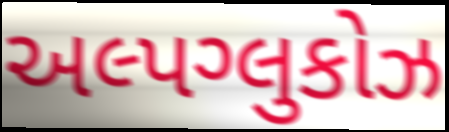
અલ્પગ્લુકોઝ